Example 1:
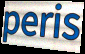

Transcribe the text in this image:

peris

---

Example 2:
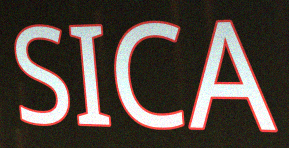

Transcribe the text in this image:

SICA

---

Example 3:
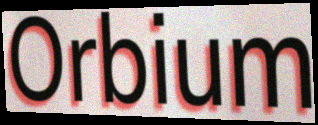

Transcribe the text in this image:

Orbium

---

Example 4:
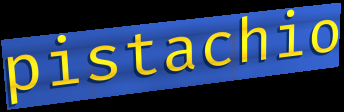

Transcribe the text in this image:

pistachio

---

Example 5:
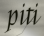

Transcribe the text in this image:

piti